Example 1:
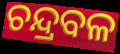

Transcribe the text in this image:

ଚନ୍ଦ୍ରବଳ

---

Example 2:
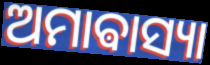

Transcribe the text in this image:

ଅମାଵାସ୍ୟା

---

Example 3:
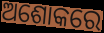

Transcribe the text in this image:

ଅଶୋକରେ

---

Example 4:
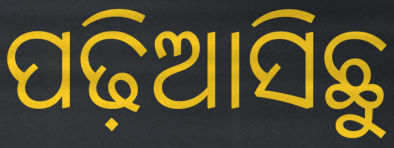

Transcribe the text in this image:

ପଢ଼ିଆସିଛୁ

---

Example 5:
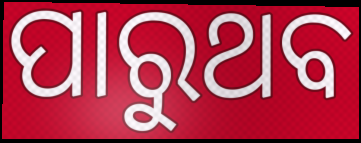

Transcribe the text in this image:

ପାରୁଥବ